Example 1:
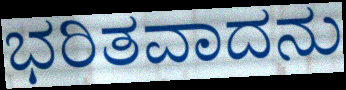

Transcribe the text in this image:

ಭರಿತವಾದನು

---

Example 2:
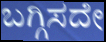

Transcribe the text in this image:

ಬಗ್ಗಿಸದೇ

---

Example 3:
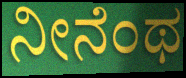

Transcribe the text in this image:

ನೀನೆಂಥ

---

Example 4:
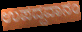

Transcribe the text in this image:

ಉಪದ್ದವಾನಂ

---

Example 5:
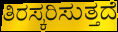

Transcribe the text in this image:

ತಿರಸ್ಕರಿಸುತ್ತದೆ